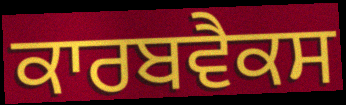
ਕਾਰਬਵੈਕਸ